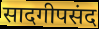
सादगीपसंद